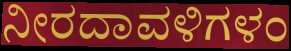
ನೀರದಾವಳಿಗಳಂ